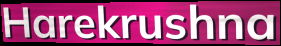
Harekrushna